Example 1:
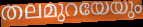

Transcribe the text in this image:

തലമുറയേയും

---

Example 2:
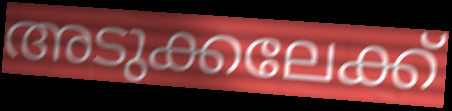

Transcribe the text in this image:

അടുക്കലേക്ക്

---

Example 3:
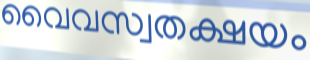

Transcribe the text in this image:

വൈവസ്വതക്ഷയം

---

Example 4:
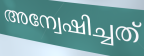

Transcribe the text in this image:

അന്വേഷിച്ചത്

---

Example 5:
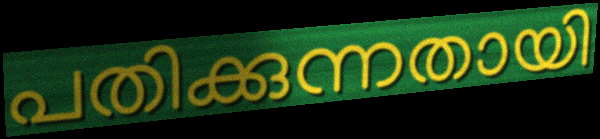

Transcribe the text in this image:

പതിക്കുന്നതായി